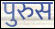
पुरुस